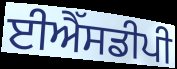
ਈਐੱਸਡੀਪੀ